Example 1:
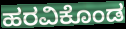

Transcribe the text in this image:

ಹರವಿಕೊಂಡ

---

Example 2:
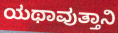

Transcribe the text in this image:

ಯಥಾವುತ್ತಾನಿ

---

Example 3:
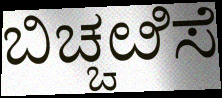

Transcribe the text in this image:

ಬಿಚ್ಚೞಿಸೆ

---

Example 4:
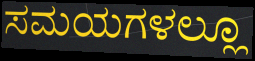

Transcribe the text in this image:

ಸಮಯಗಳಲ್ಲೂ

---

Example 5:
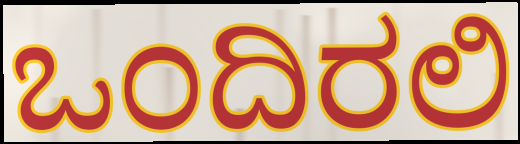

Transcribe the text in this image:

ಒಂದಿರಲಿ